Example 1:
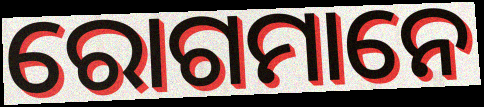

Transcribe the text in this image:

ରୋଗମାନେ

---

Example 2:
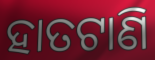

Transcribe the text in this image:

ହାତଟାଣି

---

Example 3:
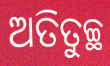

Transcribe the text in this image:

ଅତିତୁଚ୍ଛ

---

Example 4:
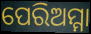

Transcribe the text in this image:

ପେରିଅମ୍ମା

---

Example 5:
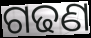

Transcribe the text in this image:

ଗଢଣ